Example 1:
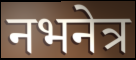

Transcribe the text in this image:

नभनेत्र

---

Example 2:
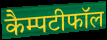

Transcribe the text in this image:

कैम्पटीफॉल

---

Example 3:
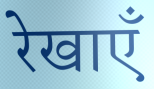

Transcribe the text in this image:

रेखाएँ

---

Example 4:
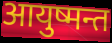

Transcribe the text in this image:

आयुष्मन्त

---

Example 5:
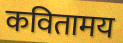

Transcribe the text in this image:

कवितामय